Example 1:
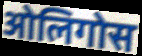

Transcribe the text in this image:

ओलिगोस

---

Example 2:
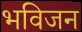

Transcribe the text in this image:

भविजन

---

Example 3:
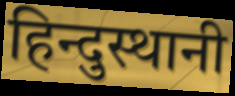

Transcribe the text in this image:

हिन्दुस्थानी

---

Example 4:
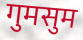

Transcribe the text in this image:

गुमसुम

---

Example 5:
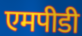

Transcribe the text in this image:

एमपीडी